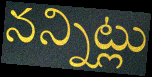
నన్నిట్లు